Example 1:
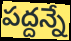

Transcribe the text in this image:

పద్దన్నే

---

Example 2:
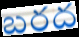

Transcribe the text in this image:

బరద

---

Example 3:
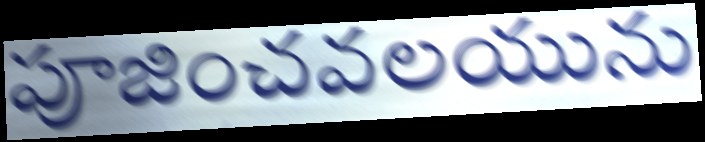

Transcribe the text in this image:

పూజించవలయును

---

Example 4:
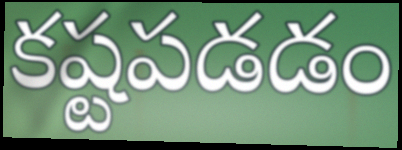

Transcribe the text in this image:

కష్టపడడం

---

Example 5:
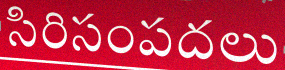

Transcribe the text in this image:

సిరిసంపదలు